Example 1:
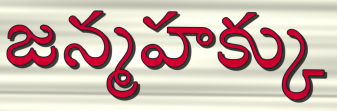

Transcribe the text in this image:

జన్మహక్కు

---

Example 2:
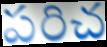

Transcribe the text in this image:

పరిచ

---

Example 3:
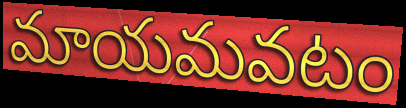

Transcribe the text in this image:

మాయమవటం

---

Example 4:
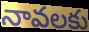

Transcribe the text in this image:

నావలకు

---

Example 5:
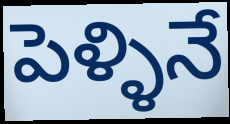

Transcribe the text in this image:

పెళ్ళినే